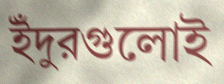
ইঁদুরগুলোই